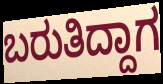
ಬರುತಿದ್ದಾಗ